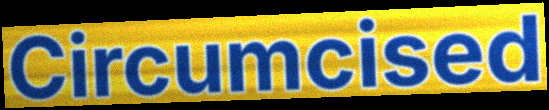
Circumcised